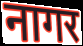
नागर